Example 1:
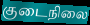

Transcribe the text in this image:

குடைநிலை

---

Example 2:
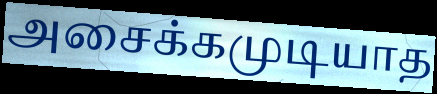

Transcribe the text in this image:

அசைக்கமுடியாத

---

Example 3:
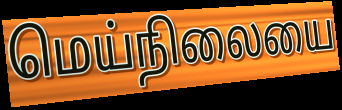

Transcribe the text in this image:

மெய்நிலையை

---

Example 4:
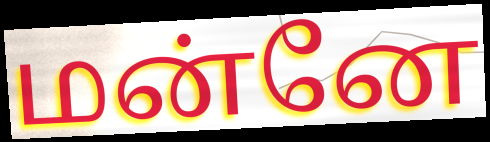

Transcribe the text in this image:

மன்னே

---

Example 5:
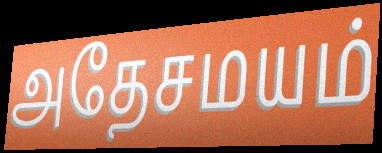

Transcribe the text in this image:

அதேசமயம்